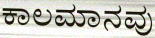
ಕಾಲಮಾನವು